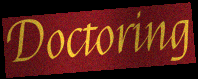
Doctoring